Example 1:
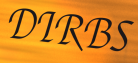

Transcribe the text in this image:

DIRBS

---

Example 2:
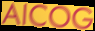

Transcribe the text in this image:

AICOG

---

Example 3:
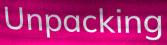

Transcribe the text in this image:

Unpacking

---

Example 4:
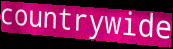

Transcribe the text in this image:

countrywide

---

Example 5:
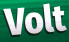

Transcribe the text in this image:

Volt